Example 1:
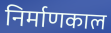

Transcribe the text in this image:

निर्माणकाल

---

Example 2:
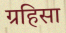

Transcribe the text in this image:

ग्रहिसा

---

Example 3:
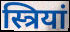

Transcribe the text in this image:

स्त्रियां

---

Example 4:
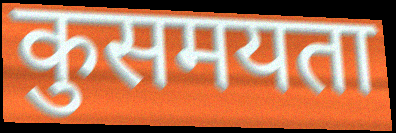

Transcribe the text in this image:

कुसमयता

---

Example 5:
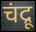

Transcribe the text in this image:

चंद्रू